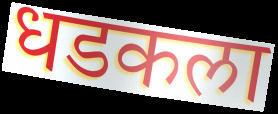
धडकला